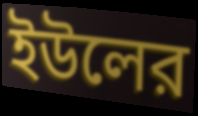
ইউলের